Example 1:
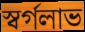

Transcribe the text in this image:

স্বর্গলাভ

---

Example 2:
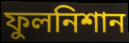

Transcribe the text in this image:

ফুলনিশান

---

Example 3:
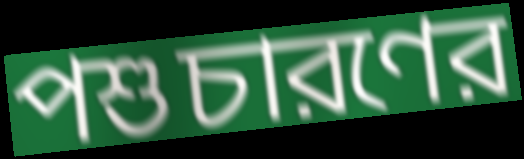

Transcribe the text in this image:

পশুচারণের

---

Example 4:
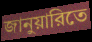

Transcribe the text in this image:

জানুয়ারিতে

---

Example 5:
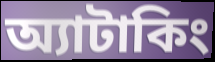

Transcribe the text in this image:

অ্যাটাকিং